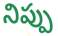
నిప్పు